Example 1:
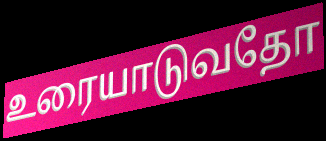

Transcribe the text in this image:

உரையாடுவதோ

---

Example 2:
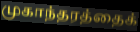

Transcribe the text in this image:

முகாந்தரத்தைக்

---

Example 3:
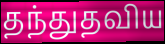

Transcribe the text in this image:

தந்துதவிய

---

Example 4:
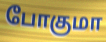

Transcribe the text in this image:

போகுமா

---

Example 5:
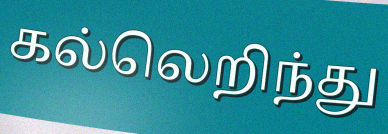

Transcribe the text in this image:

கல்லெறிந்து